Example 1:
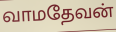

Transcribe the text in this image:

வாமதேவன்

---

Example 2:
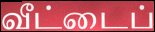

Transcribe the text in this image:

வீட்டைப்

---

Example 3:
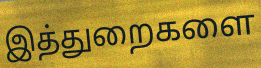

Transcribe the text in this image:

இத்துறைகளை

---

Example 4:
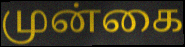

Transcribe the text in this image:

முன்கை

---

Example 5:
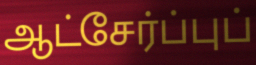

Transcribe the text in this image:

ஆட்சேர்ப்புப்